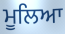
ਮੂਲਿਆ